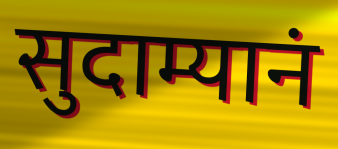
सुदाम्यानं